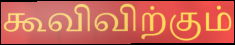
கூவிவிற்கும்